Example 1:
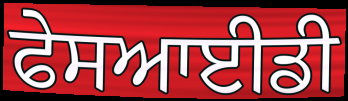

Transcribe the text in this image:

ਫੇਸਆਈਡੀ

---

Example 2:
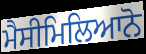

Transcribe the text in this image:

ਮੈਸੀਮਿਲਿਆਨੋ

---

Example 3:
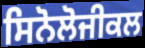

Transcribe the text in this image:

ਸਿਨੋਲੋਜੀਕਲ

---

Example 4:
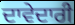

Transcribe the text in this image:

ਦਾਵੇਦਾਰੀ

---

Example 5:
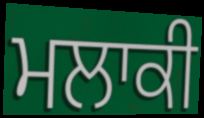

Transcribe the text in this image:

ਮਲਾਕੀ